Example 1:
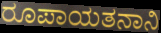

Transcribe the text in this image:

ರೂಪಾಯತನಾನಿ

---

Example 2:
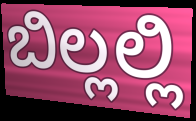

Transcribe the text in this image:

ಬಿಲ್ಲಲ್ಲಿ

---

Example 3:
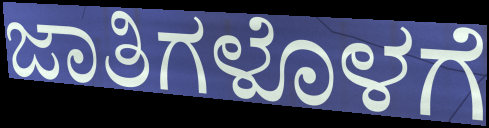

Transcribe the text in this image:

ಜಾತಿಗಳೊಳಗೆ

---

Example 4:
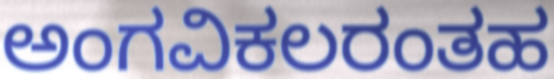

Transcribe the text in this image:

ಅಂಗವಿಕಲರಂತಹ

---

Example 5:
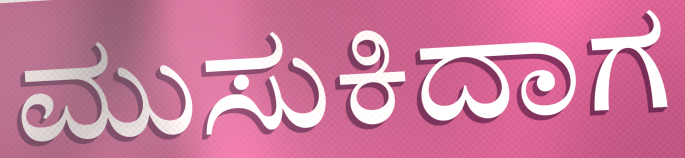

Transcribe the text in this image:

ಮುಸುಕಿದಾಗ